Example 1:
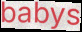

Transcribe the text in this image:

babys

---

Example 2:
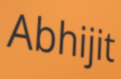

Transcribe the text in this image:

Abhijit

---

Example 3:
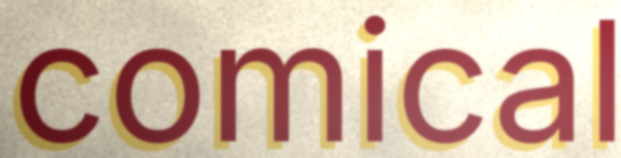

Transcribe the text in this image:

comical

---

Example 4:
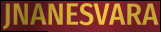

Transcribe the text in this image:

JNANESVARA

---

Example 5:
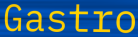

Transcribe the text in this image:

Gastro